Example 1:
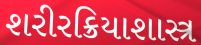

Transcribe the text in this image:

શરીરક્રિયાશાસ્ત્ર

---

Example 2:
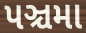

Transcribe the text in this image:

પઞ્ચમા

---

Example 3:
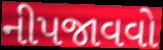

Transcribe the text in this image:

નીપજાવવો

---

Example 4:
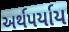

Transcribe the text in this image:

અર્થપર્યાય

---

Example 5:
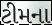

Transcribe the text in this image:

ટીમના